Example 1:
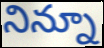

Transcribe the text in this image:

నిన్నూ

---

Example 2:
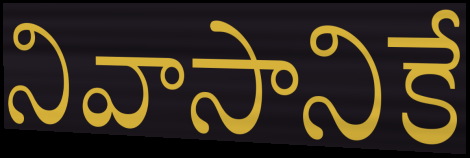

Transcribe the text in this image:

నివాసానికే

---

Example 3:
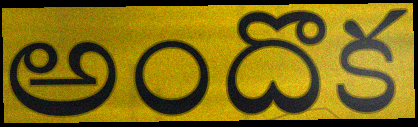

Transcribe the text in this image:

అందొక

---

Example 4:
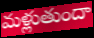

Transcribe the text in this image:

మళ్లుతుందా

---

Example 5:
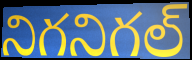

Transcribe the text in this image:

నిగనిగల్